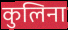
कुलिना